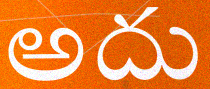
అదు